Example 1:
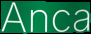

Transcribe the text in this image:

Anca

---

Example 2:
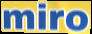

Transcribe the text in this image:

miro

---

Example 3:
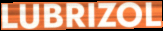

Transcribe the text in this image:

LUBRIZOL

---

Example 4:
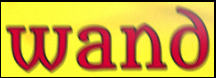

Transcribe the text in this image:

wand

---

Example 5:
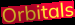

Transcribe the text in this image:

Orbitals